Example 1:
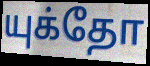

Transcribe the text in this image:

யுக்தோ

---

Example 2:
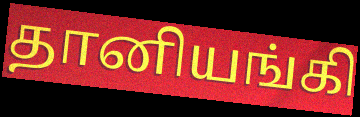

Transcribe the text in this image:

தானியங்கி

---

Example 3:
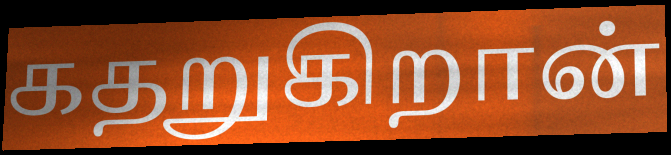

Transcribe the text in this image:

கதறுகிறான்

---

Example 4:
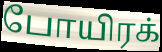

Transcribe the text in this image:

போயிரக்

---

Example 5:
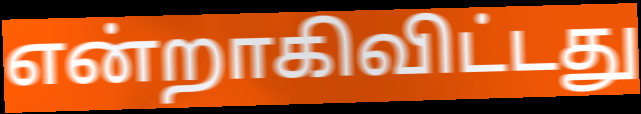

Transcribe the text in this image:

என்றாகிவிட்டது